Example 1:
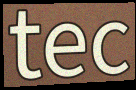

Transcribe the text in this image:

tec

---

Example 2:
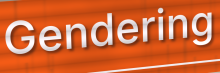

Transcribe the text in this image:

Gendering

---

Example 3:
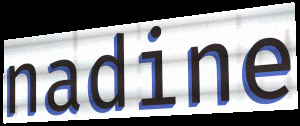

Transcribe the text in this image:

nadine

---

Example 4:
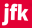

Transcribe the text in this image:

jfk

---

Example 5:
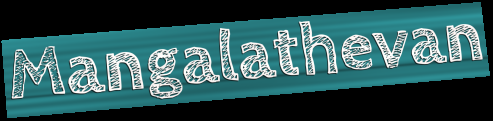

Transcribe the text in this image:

Mangalathevan